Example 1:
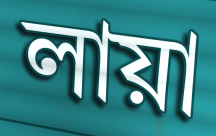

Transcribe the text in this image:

লায়া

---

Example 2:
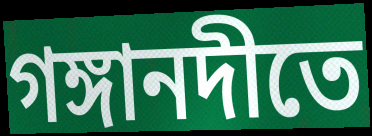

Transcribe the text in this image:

গঙ্গানদীতে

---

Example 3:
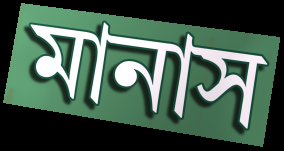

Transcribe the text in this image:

মানাস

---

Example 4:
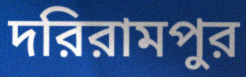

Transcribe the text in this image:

দরিরামপুর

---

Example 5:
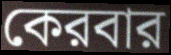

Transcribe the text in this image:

কেরবার